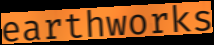
earthworks